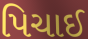
પિચાઈ